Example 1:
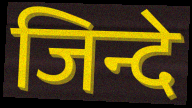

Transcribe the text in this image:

जिन्दे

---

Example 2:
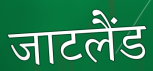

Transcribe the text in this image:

जाटलैंड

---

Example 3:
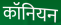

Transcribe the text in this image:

कॉनियन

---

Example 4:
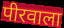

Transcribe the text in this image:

पीरवाला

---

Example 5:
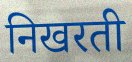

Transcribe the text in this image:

निखरती